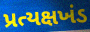
પ્રત્યક્ષખંડ